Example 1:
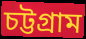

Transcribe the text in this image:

চট্টগ্ৰাম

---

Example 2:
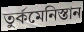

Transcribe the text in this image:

তুৰ্কমেনিস্তান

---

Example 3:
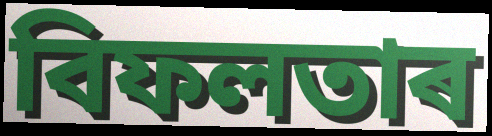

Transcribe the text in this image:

বিফলতাৰ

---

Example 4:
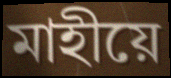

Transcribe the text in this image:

মাহীয়ে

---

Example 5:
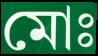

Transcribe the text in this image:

মোঃ